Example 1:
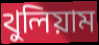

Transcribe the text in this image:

থুলিয়াম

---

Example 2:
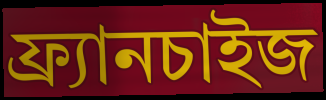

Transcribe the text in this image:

ফ্র্যানচাইজ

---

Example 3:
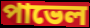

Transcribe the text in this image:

পাভেল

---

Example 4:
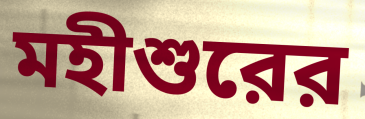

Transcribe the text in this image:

মহীশুরের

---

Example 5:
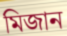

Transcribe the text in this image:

মিজান